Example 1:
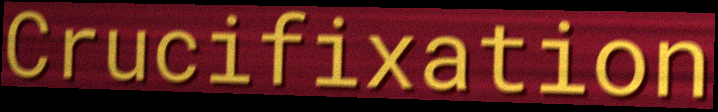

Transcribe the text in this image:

Crucifixation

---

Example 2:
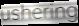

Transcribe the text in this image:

ushering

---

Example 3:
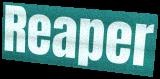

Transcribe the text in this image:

Reaper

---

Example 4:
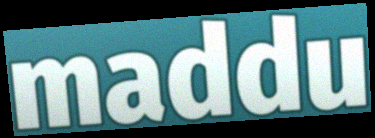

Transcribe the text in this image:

maddu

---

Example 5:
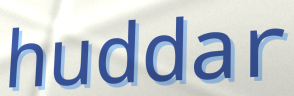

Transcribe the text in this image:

huddar